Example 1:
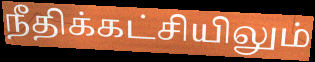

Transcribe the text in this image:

நீதிக்கட்சியிலும்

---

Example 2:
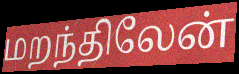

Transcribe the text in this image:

மறந்திலேன்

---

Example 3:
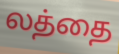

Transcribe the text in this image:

லத்தை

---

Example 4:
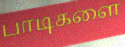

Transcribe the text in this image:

பாடிகளை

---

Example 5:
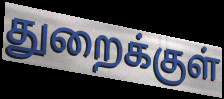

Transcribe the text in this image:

துறைக்குள்